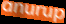
anurup